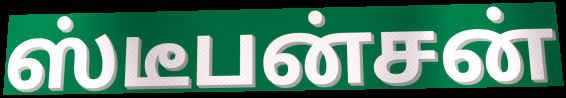
ஸ்டீபன்சன்